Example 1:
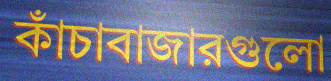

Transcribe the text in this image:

কাঁচাবাজারগুলো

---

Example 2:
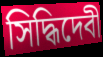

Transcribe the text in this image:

সিদ্ধিদেবী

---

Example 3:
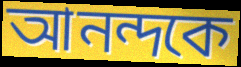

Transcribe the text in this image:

আনন্দকে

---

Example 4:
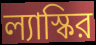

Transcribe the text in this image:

ল্যাস্কির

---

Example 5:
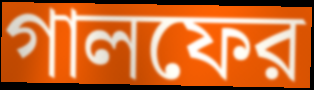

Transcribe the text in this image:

গালফের